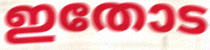
ഇതോട